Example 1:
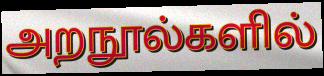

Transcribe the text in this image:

அறநூல்களில்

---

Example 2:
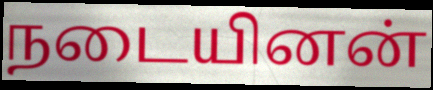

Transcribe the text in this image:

நடையினன்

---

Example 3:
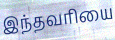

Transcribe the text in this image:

இந்தவரியை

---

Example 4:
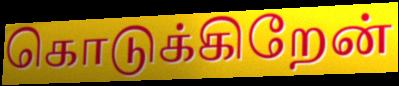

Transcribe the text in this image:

கொடுக்கிறேன்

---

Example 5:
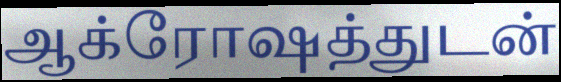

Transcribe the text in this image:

ஆக்ரோஷத்துடன்